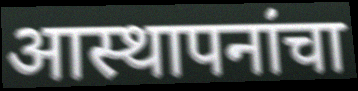
आस्थापनांचा